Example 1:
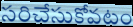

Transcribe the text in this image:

సరిచేసుకోవటం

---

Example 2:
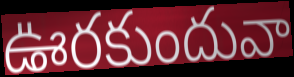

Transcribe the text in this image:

ఊరకుందువా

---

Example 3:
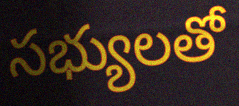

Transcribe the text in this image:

సభ్యులతో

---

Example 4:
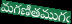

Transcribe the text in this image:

మగణితముగఁ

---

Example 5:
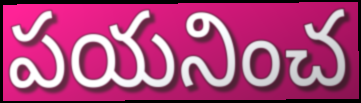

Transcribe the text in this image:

పయనించ